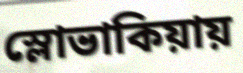
স্লোভাকিয়ায়